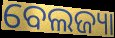
ବେଲଜ୍ୟା